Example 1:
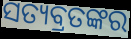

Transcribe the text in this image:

ସତ୍ୟବ୍ରତଙ୍କର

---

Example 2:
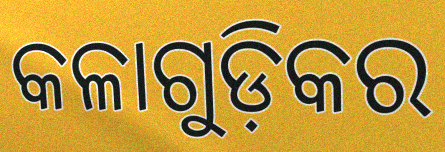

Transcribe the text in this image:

କଳାଗୁଡ଼ିକର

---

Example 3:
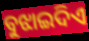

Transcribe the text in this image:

ବୁଝାଇଦିଏ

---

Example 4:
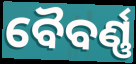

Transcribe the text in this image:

ବୈବର୍ଣ୍ଣ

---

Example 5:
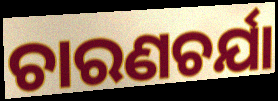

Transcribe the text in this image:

ଚାରଣଚର୍ଯା